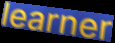
learner